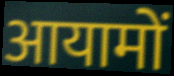
आयामों